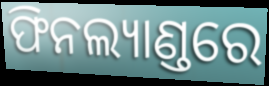
ଫିନଲ୍ୟାଣ୍ଡରେ